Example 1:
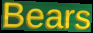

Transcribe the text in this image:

Bears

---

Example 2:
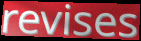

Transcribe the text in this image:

revises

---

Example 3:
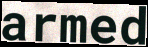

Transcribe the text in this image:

armed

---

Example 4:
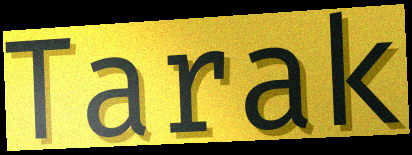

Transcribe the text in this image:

Tarak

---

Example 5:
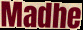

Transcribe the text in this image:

Madhe